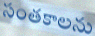
సంతకాలను